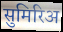
सुमिरिअ